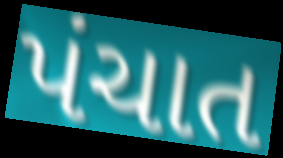
પંચાત